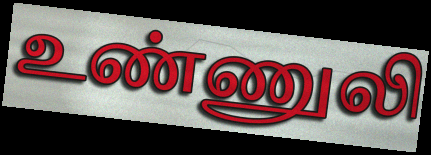
உண்ணுலி